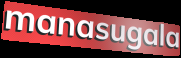
manasugala